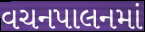
વચનપાલનમાં